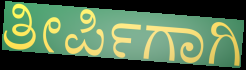
ತೀರ್ಪಿಗಾಗಿ